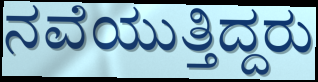
ನವೆಯುತ್ತಿದ್ದರು